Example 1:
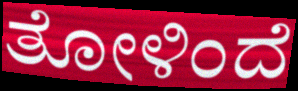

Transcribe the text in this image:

ತೋಳಿಂದೆ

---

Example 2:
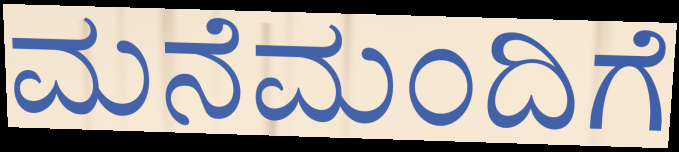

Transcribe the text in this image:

ಮನೆಮಂದಿಗೆ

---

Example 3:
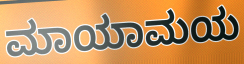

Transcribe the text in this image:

ಮಾಯಾಮಯ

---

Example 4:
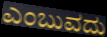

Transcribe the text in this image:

ಎಂಬುವದು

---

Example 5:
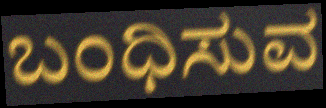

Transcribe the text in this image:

ಬಂಧಿಸುವ